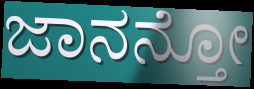
ಜಾನನ್ತೋ